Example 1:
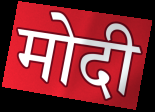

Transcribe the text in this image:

मोदी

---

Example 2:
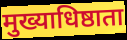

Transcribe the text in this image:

मुख्याधिष्ठाता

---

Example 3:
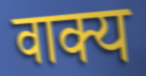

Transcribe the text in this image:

वाक्य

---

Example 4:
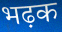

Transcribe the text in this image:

भढ़क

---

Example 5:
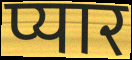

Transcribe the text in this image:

प्‍यार